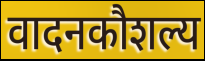
वादनकौशल्य